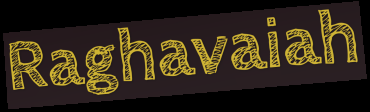
Raghavaiah